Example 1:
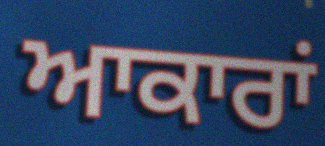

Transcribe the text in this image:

ਆਕਾਰਾਂ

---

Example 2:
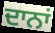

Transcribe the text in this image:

ਦਾਨਾਂ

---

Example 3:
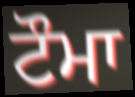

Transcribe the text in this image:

ਟੌਮਾ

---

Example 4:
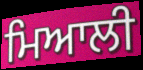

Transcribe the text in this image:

ਮਿਆਲੀ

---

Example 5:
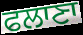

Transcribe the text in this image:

ਫਲਾਣਾ